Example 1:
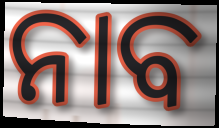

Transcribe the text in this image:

ନାବ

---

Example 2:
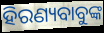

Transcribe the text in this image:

ହିରଣ୍ୟବାବୁଙ୍କ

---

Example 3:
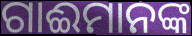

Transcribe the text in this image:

ଗାଈମାନଙ୍କ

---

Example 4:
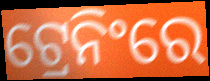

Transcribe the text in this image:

ଟ୍ରେନିଂରେ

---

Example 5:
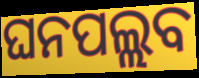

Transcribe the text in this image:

ଘନପଲ୍ଲବ